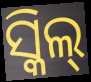
ସ୍କିଲ୍